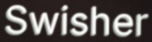
Swisher